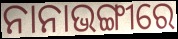
ନାନାଭଙ୍ଗୀରେ